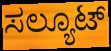
ಸಲ್ಯೂಟ್